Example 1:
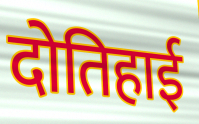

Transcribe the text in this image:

दोतिहाई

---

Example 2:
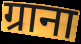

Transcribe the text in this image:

ग्राना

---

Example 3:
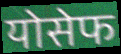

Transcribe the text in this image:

योसेफ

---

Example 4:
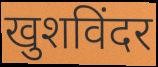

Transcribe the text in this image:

खुशविंदर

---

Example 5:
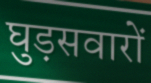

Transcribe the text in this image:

घुड़सवारों